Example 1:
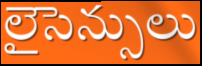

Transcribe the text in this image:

లైసెన్సులు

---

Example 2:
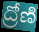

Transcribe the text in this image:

ద్రోణి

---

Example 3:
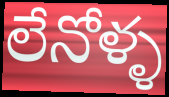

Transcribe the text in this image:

లేనోళ్ళ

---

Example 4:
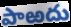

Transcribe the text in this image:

పాఱదు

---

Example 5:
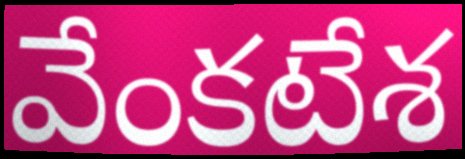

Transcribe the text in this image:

వేంకటేశ